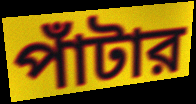
পাঁটার